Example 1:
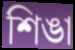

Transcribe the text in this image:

শিঙা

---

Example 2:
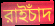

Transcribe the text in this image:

রাইচাঁদ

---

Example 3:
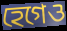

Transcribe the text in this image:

হেগেও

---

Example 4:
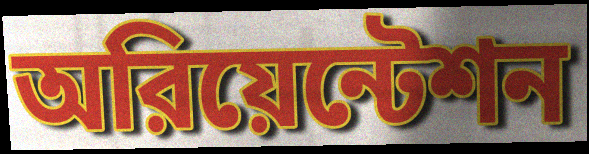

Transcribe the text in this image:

অরিয়েন্টেশন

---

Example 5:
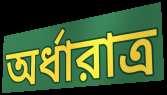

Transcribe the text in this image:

অর্ধারাত্র